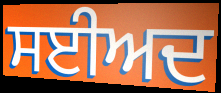
ਸਈਅਦ